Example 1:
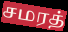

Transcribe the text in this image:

சமரத்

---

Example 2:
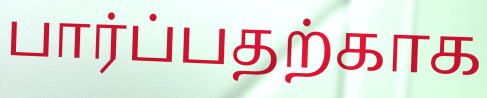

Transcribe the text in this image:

பார்ப்பதற்காக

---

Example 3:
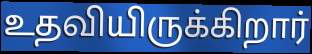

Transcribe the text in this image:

உதவியிருக்கிறார்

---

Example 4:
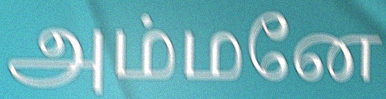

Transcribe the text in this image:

அம்மனே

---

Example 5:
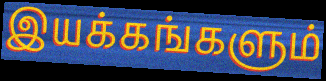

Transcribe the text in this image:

இயக்கங்களும்